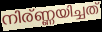
നിര്ണ്ണയിച്ചത്